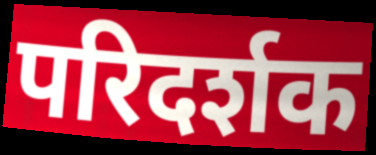
परिदर्शक